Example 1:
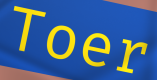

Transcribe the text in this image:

Toer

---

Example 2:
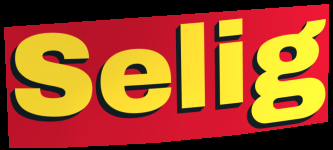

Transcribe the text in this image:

Selig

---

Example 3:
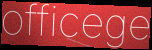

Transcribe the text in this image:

officege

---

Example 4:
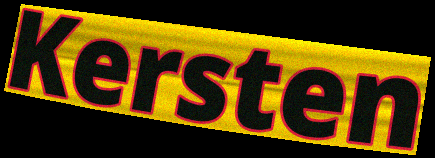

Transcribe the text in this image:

Kersten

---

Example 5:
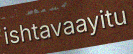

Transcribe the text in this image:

ishtavaayitu